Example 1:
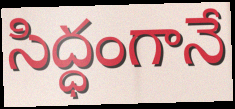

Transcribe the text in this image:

సిద్ధంగానే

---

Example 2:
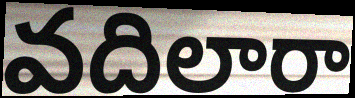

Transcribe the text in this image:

వదిలారా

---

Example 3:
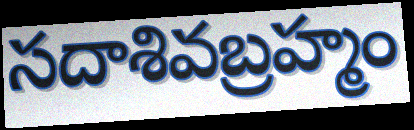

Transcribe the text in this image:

సదాశివబ్రహ్మం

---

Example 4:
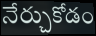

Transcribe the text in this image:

నేర్చుకోడం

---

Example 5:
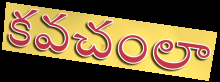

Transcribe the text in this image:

కవచంలా